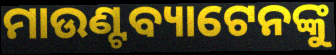
ମାଉଣ୍ଟବ୍ୟାଟେନଙ୍କୁ